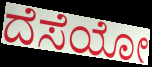
ದೆಸೆಯೋ